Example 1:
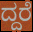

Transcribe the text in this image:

ದ್ದರೆ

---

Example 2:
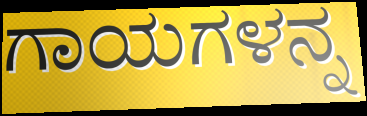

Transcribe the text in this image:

ಗಾಯಗಳನ್ನ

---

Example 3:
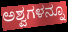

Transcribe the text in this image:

ಅಶ್ವಗಳನ್ನೂ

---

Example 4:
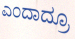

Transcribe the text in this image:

ಎಂದಾದ್ರೂ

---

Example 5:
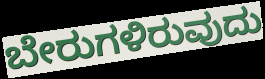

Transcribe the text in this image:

ಬೇರುಗಳಿರುವುದು